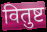
वितुष्ट